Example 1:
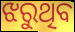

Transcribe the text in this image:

ଝରୁଥିବ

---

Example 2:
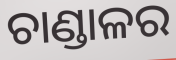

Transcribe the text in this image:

ଚାଣ୍ଡାଳର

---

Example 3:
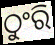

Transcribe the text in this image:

ଠୁଂରି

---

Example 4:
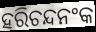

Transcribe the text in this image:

ହରିଚନ୍ଦନଂକ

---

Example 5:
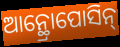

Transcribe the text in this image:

ଆନ୍ଥ୍ରୋପୋସିନ୍